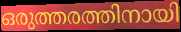
ഒരുത്തരത്തിനായി